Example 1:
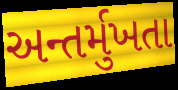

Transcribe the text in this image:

અન્તર્મુખતા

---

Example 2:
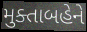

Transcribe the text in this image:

મુક્તાબહેને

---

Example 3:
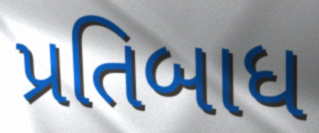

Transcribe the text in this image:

પ્રતિબાધ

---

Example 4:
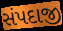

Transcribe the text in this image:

સંપદાજી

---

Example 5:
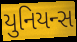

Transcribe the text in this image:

યુનિયન્સ